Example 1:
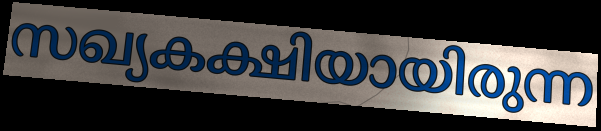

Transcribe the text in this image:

സഖ്യകക്ഷിയായിരുന്ന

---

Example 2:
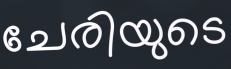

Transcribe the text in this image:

ചേരിയുടെ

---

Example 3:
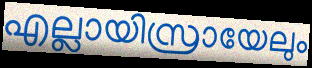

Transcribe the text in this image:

എല്ലായിസ്രായേലും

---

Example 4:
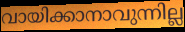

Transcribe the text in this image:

വായിക്കാനാവുന്നില്ല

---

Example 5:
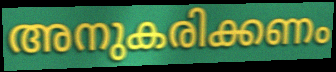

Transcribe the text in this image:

അനുകരിക്കണം